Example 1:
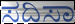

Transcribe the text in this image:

ಸದಿಸಾ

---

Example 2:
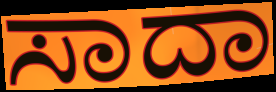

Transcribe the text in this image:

ಸಾದಾ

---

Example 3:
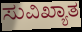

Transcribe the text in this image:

ಸುವಿಖ್ಯಾತ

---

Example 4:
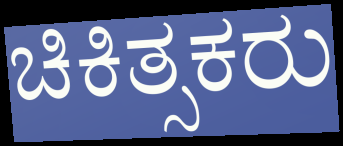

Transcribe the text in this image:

ಚಿಕಿತ್ಸಕರು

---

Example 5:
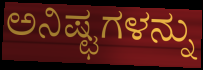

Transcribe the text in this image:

ಅನಿಷ್ಟಗಳನ್ನು